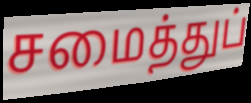
சமைத்துப்